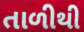
તાળીથી